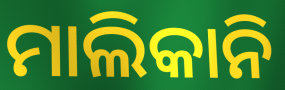
ମାଲିକାନି